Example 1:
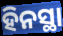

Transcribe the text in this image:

ହିନସ୍ଥା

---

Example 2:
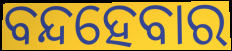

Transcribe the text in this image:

ବନ୍ଦହେବାର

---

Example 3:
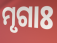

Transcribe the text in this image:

ମୃଗାଃ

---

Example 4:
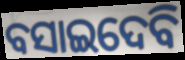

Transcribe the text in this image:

ବସାଇଦେବି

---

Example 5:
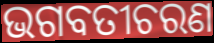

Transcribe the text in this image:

ଭଗବତୀଚରଣ